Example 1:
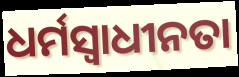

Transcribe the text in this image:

ଧର୍ମସ୍ୱାଧୀନତା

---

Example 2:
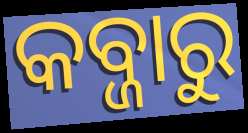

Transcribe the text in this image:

କବ୍ଜାରୁ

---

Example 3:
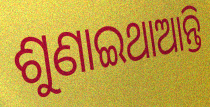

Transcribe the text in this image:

ଶୁଣାଇଥାଆନ୍ତି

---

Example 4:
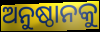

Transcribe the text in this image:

ଅନୁଷ୍ଠାନକୁ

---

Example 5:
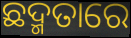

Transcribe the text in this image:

ଛଦ୍ମତାରେ